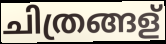
ചിത്രങ്ങള്